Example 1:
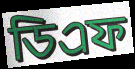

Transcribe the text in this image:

ডিএফ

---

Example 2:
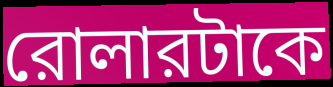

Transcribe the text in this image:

রোলারটাকে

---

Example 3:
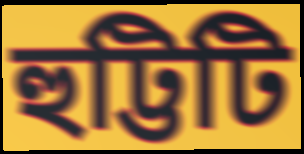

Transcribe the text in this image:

হুট্টিটি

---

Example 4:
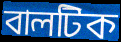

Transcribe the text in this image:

বালটিক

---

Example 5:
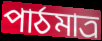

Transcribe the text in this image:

পাঠমাত্র